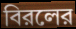
বিরলের